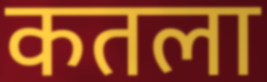
कतला